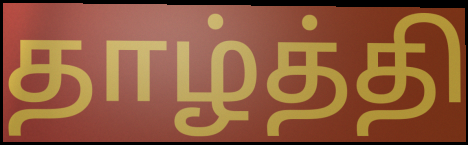
தாழ்த்தி